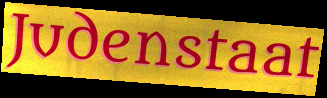
Judenstaat